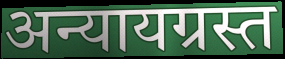
अन्यायग्रस्त